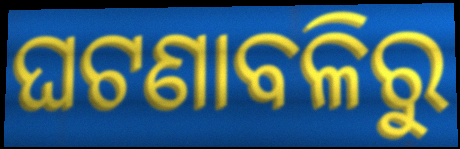
ଘଟଣାବଳିରୁ